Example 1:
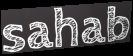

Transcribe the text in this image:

sahab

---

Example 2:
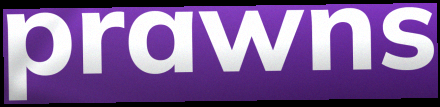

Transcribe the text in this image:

prawns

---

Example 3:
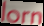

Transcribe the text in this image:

lorn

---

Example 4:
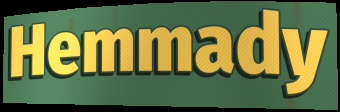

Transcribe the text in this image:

Hemmady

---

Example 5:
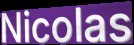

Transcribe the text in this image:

Nicolas